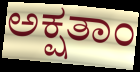
ಅಕ್ಷತಾಂ